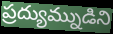
ప్రద్యుమ్నుడిని